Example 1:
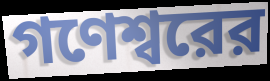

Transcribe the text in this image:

গণেশ্বরের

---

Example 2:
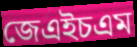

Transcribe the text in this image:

জেএইচএম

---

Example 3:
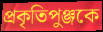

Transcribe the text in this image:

প্রকৃতিপুঞ্জকে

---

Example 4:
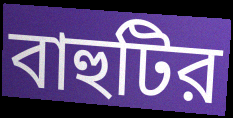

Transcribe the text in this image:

বাহুটির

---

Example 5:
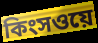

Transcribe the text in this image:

কিংসওয়ে